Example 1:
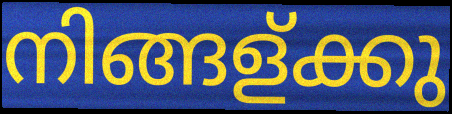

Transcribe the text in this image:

നിങ്ങള്ക്കു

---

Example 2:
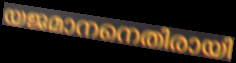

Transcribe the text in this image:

യജമാനനെതിരായി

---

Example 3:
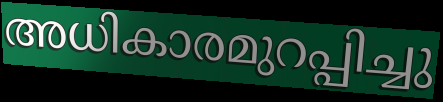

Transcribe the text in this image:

അധികാരമുറപ്പിച്ചു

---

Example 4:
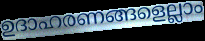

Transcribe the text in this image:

ഉദാഹരണങ്ങളെല്ലാം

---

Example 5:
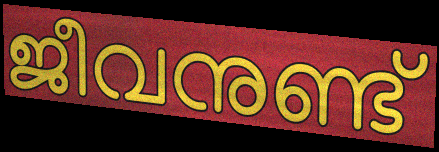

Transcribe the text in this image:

ജീവനുണ്ട്